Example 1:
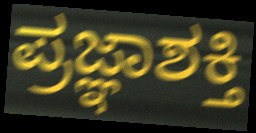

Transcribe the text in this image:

ಪ್ರಜ್ಞಾಶಕ್ತಿ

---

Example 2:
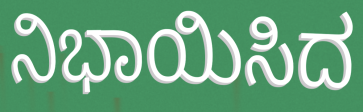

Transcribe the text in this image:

ನಿಭಾಯಿಸಿದ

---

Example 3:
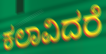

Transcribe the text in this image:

ಕಲಾವಿದರೆ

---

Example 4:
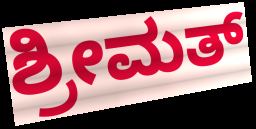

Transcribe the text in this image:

ಶ್ರೀಮತ್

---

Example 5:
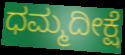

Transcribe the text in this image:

ಧಮ್ಮದೀಕ್ಷೆ